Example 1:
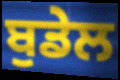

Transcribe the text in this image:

ਬੁਡੇਲ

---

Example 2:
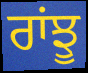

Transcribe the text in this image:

ਰਾਂਝੂ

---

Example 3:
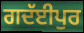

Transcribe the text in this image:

ਗਦੱਈਪੁਰ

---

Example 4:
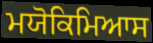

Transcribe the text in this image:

ਮਯੋਕਿਮਿਆਸ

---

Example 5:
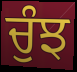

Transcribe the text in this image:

ਚੁੰਝ